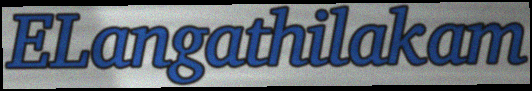
ELangathilakam